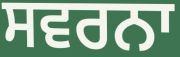
ਸਵਰਨਾ